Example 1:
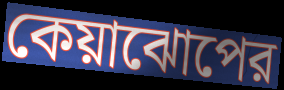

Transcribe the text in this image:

কেয়াঝোপের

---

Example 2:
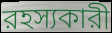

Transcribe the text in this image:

রহস্যকারী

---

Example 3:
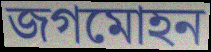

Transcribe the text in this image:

জগমোহন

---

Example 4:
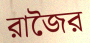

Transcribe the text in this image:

রাজৈর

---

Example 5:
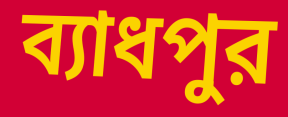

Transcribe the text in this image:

ব্যাধপুর